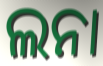
ଲନା